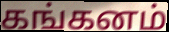
கங்கனம்